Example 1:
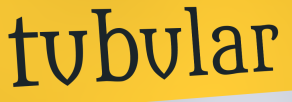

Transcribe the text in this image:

tubular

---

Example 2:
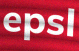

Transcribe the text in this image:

epsl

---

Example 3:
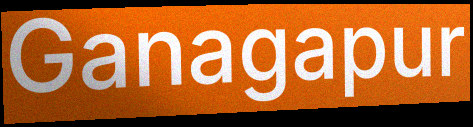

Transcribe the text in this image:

Ganagapur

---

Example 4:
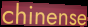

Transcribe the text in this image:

chinense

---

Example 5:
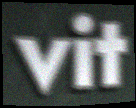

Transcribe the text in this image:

vit